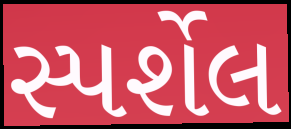
સ્પર્શેલ